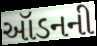
ઑડનની